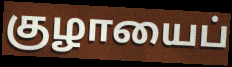
குழாயைப்